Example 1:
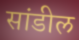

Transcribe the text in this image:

सांडील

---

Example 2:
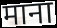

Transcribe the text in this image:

माना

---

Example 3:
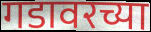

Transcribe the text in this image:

गडावरच्या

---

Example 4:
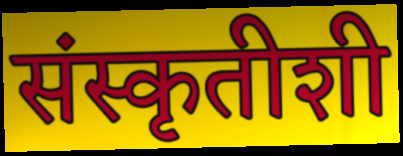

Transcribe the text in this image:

संस्कृतीशी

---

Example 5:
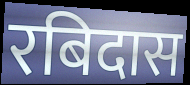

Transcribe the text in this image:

रबिदास